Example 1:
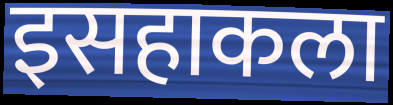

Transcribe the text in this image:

इसहाकला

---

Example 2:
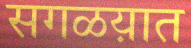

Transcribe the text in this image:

सगळय़ात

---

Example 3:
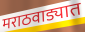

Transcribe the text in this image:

मराठवाड्यात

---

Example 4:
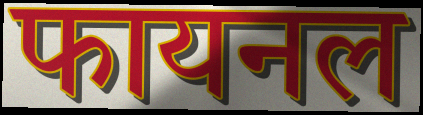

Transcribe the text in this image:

फायनल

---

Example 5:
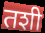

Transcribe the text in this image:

तशी